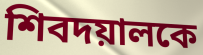
শিবদয়ালকে